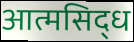
आत्मसिद्ध